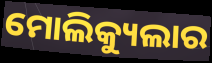
ମୋଲିକ୍ୟୁଲାର